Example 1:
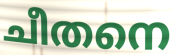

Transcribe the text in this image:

ചീതനെ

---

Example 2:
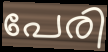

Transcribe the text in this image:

പേരി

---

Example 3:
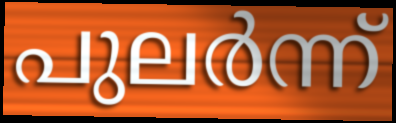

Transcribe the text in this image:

പുലർന്ന്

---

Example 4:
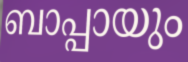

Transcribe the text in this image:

ബാപ്പായും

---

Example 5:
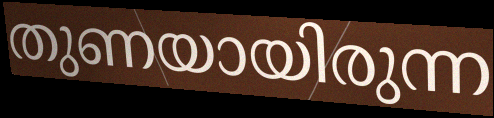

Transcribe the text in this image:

തുണയായിരുന്ന